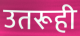
उतरूही